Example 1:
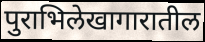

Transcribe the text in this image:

पुराभिलेखागारातील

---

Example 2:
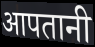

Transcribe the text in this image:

आपतानी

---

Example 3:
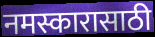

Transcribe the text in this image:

नमस्कारासाठी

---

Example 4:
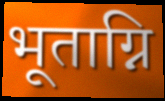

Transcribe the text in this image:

भूताग्नि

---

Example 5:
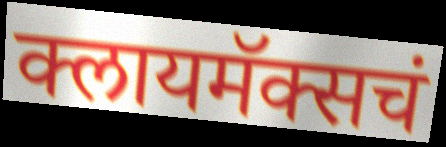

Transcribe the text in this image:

क्लायमॅक्सचं